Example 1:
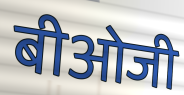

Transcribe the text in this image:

बीओजी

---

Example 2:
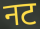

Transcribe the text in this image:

नट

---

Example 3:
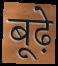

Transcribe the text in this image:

बूढ़े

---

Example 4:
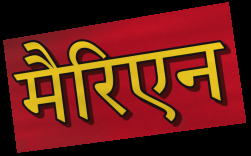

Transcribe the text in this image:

मैरिएन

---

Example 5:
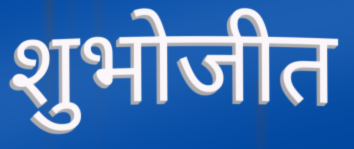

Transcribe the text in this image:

शुभोजीत